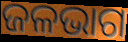
ଜଳଭାଗ